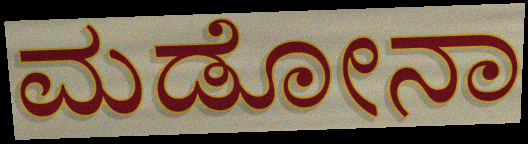
ಮಡೋನಾ